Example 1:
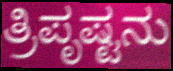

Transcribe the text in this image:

ತ್ರಿಪೃಷ್ಟನು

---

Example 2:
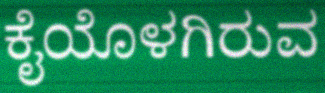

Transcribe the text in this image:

ಕೈಯೊಳಗಿರುವ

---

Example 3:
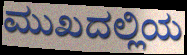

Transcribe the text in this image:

ಮುಖದಲ್ಲಿಯ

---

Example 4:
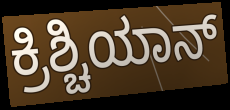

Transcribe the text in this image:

ಕ್ರಿಶ್ಚಿಯಾನ್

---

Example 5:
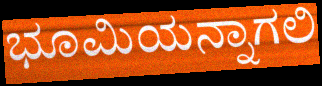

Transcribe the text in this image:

ಭೂಮಿಯನ್ನಾಗಲಿ